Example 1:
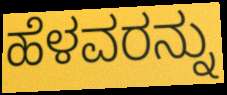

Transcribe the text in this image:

ಹೆಳವರನ್ನು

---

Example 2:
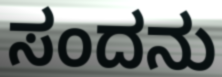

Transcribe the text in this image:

ಸಂದನು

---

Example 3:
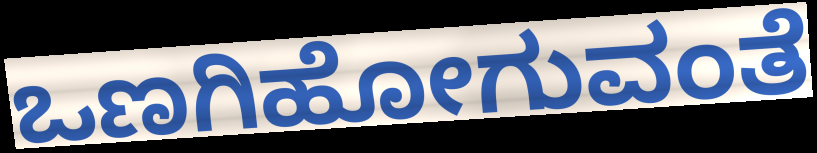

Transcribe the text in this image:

ಒಣಗಿಹೋಗುವಂತೆ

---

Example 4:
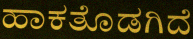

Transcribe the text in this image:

ಹಾಕತೊಡಗಿದೆ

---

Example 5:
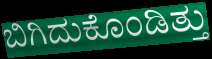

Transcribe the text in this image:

ಬಿಗಿದುಕೊಂಡಿತ್ತು